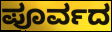
ಪೂರ್ವದ